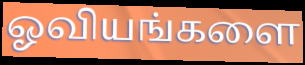
ஓவியங்களை